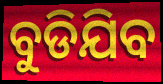
ବୁଡିଯିବ